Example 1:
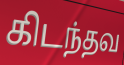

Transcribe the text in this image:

கிடந்தவ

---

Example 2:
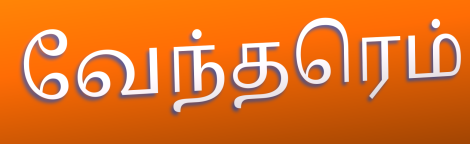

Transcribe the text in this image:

வேந்தரெம்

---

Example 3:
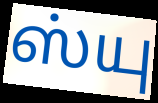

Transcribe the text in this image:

ஸ்யு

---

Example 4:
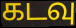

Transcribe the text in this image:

கடவு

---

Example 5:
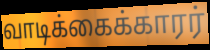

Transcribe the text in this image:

வாடிக்கைக்காரர்